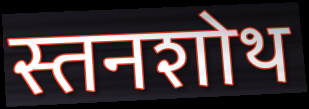
स्तनशोथ